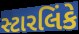
સ્ટારલિંકે